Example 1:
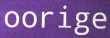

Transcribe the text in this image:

oorige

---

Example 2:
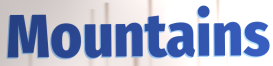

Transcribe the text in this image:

Mountains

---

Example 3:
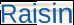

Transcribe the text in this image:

Raisin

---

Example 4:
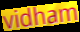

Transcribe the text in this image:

vidham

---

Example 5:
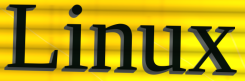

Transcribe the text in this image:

Linux